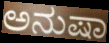
ಅನುಷಾ